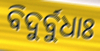
ବିଦୁର୍ବୁଧାଃ